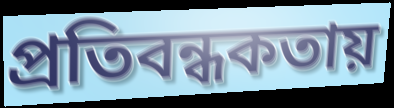
প্রতিবন্ধকতায়